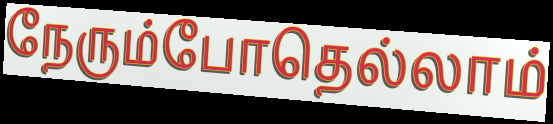
நேரும்போதெல்லாம்